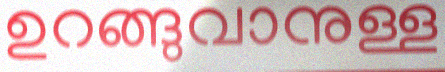
ഉറങ്ങുവാനുള്ള